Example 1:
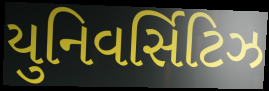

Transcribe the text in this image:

યુનિવર્સિટિઝ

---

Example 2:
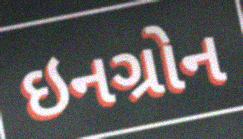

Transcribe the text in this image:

ઇનગ્રોન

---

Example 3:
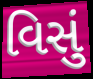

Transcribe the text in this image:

વિસું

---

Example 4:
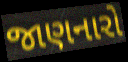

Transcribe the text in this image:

જાણનારો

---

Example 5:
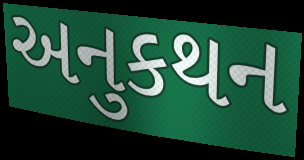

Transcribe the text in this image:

અનુકથન